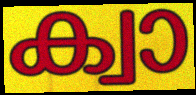
ക്വാ